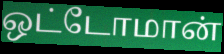
ஒட்டோமான்